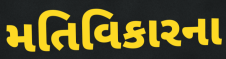
મતિવિકારના